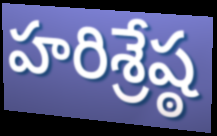
హరిశ్రేష్ఠ